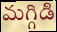
మగ్గిడి